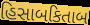
હિસાબકિતાબ